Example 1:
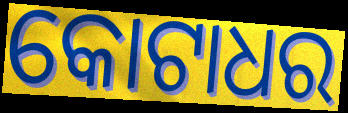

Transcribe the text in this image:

କୋଟାଧର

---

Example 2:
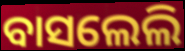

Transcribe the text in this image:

ବାସଲେଲି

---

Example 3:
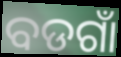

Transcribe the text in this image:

ବଡଗାଁ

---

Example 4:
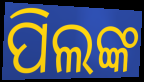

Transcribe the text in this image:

ପିଲଙ୍କ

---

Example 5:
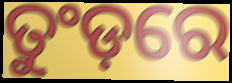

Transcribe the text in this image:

ତୁଂଡ଼ରେ